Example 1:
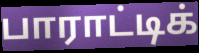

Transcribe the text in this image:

பாராட்டிக்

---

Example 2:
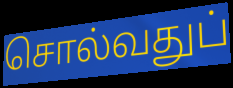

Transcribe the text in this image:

சொல்வதுப்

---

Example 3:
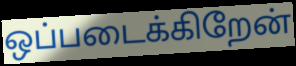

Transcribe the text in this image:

ஒப்படைக்கிறேன்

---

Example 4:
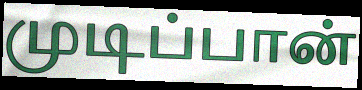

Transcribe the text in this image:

முடிப்பான்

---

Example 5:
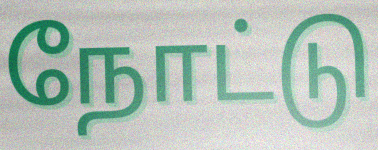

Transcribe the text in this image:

நோட்டு